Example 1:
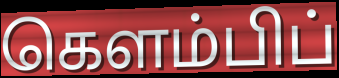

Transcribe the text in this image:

கௌம்பிப்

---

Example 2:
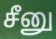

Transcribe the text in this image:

சீனு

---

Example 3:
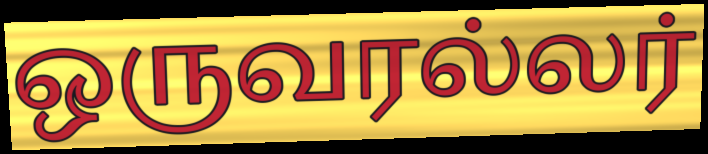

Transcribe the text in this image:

ஒருவரல்லர்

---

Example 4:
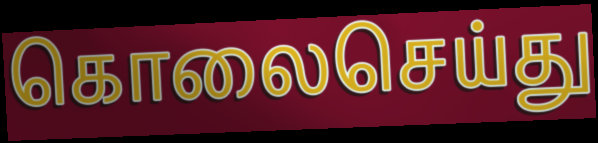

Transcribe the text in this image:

கொலைசெய்து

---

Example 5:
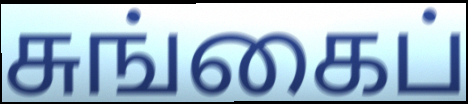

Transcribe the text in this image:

சுங்கைப்